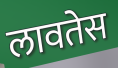
लावतेस